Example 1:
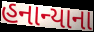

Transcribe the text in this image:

હનાન્યાના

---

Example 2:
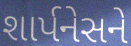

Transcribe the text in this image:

શાર્પનેસને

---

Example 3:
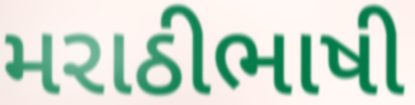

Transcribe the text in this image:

મરાઠીભાષી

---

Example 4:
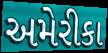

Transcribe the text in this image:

અમેરીકા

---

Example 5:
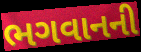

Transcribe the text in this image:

ભગવાનની